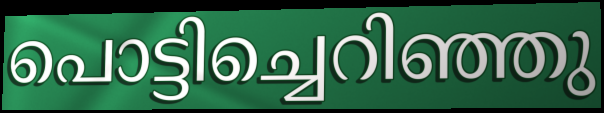
പൊട്ടിച്ചെറിഞ്ഞു